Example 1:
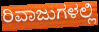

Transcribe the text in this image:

ರಿವಾಜುಗಳಲ್ಲಿ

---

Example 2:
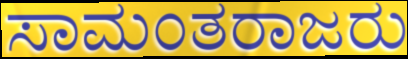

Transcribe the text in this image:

ಸಾಮಂತರಾಜರು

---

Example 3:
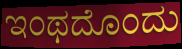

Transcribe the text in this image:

ಇಂಥದೊಂದು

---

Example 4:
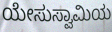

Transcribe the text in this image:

ಯೇಸುಸ್ವಾಮಿಯ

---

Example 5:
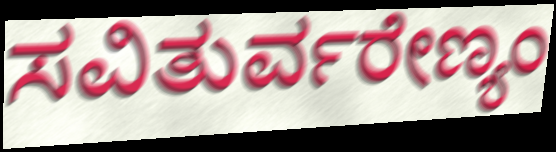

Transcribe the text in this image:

ಸವಿತುರ್ವರೇಣ್ಯಂ